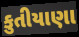
કુતીયાણા